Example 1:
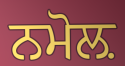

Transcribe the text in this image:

ਨਮੋਲ਼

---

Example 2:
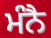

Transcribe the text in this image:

ਮੰਨੈ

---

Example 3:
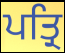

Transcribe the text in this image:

ਪਤ੍ਰਿ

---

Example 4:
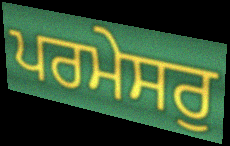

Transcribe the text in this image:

ਪਰਮੇਸਰੁ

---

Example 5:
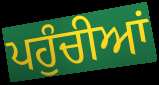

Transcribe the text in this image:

ਪਹੁੰਚੀਆਂ